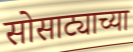
सोसाट्याच्या